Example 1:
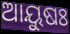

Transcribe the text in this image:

ଆୟୁଷଃ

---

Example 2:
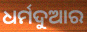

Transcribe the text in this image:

ଧର୍ମଦୁଆର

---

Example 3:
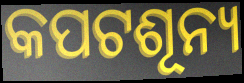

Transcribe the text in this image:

କପଟଶୂନ୍ୟ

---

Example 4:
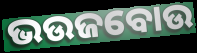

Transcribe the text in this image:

ଭଉଜବୋଉ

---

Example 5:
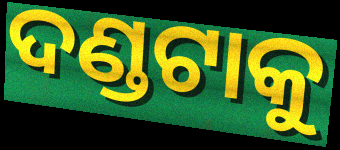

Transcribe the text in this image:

ଦଣ୍ଡଟାକୁ